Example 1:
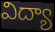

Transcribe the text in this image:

విద్యా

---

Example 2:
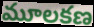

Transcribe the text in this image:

మూలకణ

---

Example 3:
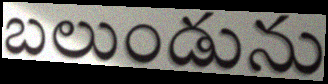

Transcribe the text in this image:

బలుండును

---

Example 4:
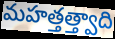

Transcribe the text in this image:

మహత్తత్త్వాది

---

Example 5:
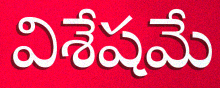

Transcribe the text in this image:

విశేషమే